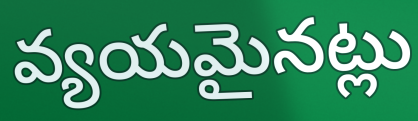
వ్యయమైనట్లు